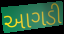
આગડી